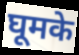
घूमके